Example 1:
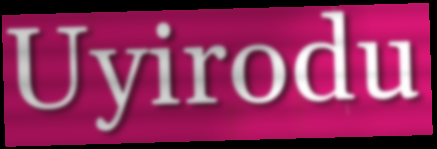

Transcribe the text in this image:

Uyirodu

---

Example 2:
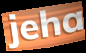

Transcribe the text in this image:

jeha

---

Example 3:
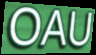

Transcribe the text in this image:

OAU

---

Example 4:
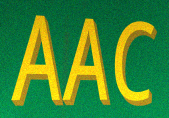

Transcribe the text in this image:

AAC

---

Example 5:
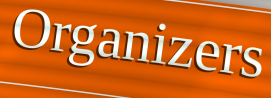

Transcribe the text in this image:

Organizers